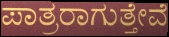
ಪಾತ್ರರಾಗುತ್ತೇವೆ